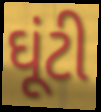
ઘૂંટી